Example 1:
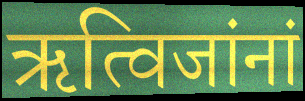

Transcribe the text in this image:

ऋत्विजांनां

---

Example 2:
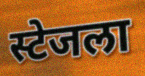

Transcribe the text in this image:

स्टेजला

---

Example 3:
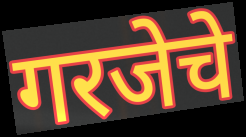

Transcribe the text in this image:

गरजेचे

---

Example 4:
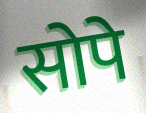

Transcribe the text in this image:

सोपे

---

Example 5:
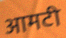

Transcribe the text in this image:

आमटी